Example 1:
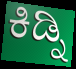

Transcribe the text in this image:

ಕಿಡ್ನಿ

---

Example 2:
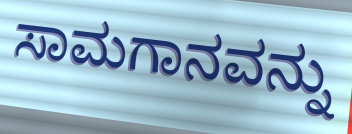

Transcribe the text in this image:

ಸಾಮಗಾನವನ್ನು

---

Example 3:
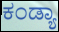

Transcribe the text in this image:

ಕಂಡ್ಯಾ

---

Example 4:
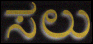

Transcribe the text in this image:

ಸಲು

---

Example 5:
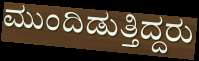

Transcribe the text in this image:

ಮುಂದಿಡುತ್ತಿದ್ದರು